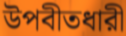
উপবীতধারী